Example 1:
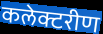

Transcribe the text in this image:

कलेक्टरीण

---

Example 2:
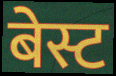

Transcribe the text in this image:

बेस्ट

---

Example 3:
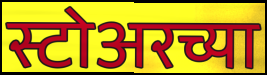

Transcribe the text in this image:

स्टोअरच्या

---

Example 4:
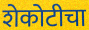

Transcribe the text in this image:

शेकोटीचा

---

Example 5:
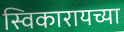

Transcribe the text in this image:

स्विकारायच्या